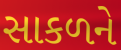
સાકળને